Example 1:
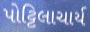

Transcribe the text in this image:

પોટ્ટિલાચાર્ય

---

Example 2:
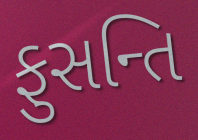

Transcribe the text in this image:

ફુસન્તિ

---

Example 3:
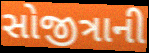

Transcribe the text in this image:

સોજીત્રાની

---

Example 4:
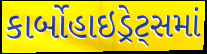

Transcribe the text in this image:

કાર્બોહાઇડ્રેટ્સમાં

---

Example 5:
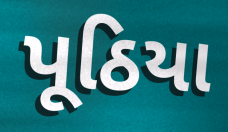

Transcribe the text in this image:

પૂઠિયા